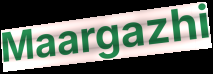
Maargazhi